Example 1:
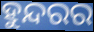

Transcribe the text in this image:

ହୁନ୍ଦରର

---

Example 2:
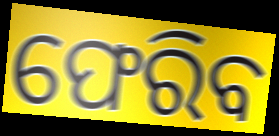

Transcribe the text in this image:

ଫେରିବ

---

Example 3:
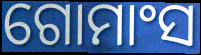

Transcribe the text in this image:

ଗୋମାଂସ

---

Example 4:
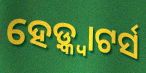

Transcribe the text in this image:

ହେଡ଼୍କ୍ୱାଟର୍ସ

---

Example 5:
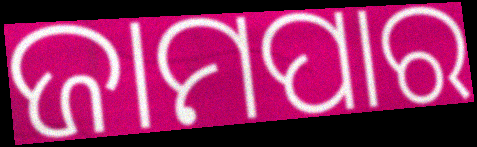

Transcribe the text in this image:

ଜାମପାର